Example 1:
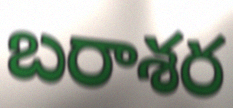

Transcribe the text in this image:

బరాశర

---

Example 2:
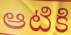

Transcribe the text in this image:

ఆటికి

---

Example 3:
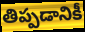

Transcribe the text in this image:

తిప్పడానికీ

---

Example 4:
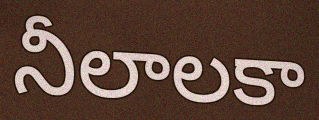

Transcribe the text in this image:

నీలాలకా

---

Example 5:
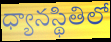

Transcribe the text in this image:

ధ్యానస్థితిలో